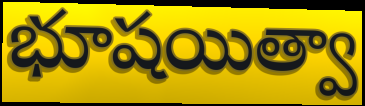
భూషయిత్వా